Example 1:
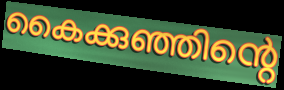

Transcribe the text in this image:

കൈക്കുഞ്ഞിന്റെ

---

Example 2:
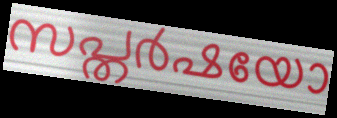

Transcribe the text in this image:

സപ്തർഷയോ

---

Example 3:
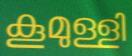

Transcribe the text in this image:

കൂമുള്ളി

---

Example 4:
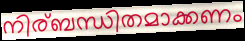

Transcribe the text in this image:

നിര്ബന്ധിതമാക്കണം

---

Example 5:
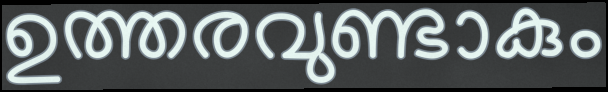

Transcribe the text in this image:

ഉത്തരവുണ്ടാകും